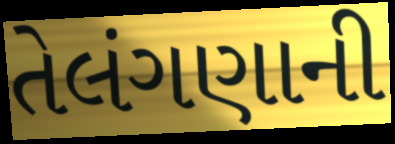
તેલંગણાની